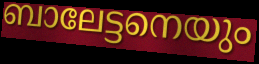
ബാലേട്ടനെയും